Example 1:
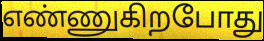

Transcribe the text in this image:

எண்ணுகிறபோது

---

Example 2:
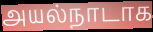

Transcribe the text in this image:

அயல்நாடாக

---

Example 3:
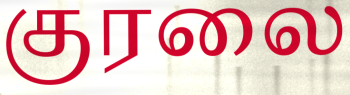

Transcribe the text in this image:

குரலை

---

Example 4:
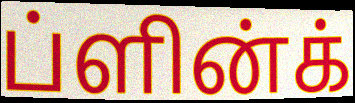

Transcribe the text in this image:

ப்ளின்க்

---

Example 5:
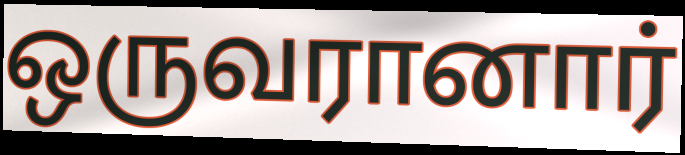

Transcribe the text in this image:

ஒருவரானார்